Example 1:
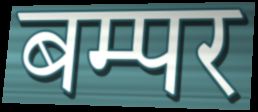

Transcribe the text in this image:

बम्पर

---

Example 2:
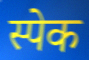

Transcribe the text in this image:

स्पेक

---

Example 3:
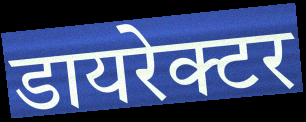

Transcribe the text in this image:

डायरेक्टर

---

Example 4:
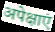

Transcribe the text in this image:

अपेक्षाएं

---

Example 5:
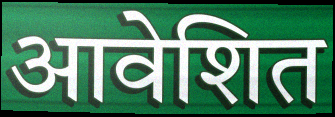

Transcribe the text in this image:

आवेशित